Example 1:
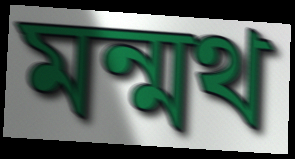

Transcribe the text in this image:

মন্মথ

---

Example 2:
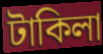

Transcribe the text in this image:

টাকিলা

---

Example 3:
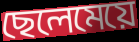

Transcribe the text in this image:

ছেলেমেয়ে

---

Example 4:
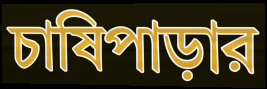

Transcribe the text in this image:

চাষিপাড়ার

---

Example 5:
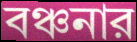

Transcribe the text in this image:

বঞ্চনার